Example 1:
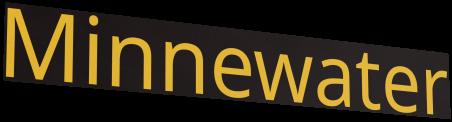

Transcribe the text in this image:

Minnewater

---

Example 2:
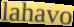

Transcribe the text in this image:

lahavo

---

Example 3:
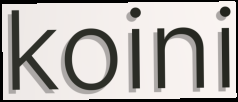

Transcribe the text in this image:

koini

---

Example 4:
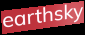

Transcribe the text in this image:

earthsky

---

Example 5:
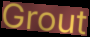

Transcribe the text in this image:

Grout